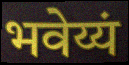
भवेय्यं